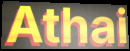
Athai